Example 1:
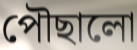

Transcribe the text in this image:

পৌছালো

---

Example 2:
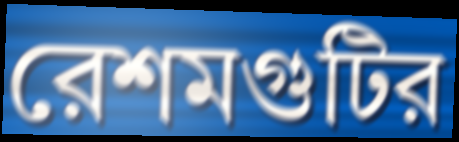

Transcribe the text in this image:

রেশমগুটির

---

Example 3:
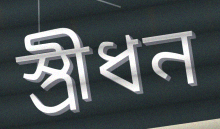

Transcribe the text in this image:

স্ত্রীধন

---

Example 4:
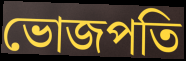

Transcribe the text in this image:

ভোজপতি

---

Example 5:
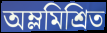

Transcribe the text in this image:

অম্লমিশ্রিত